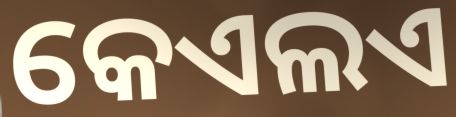
କେଏଲଏ